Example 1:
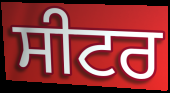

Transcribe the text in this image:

ਸੀਟਰ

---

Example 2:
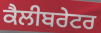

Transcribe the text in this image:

ਕੈਲੀਬਰੇਟਰ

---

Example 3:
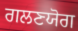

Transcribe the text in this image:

ਗਲਣਯੋਗ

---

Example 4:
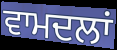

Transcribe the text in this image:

ਵਾਮਦਲਾਂ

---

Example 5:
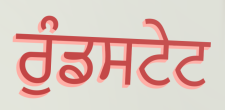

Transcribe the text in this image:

ਰੁੰਡਸਟੇਟ